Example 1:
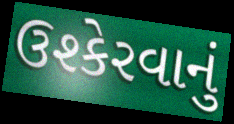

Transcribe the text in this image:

ઉશ્કેરવાનું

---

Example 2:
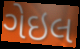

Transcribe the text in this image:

ગેઇલ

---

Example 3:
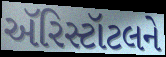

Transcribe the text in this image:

ઍરિસ્ટૉટલને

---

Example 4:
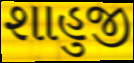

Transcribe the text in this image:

શાહુજી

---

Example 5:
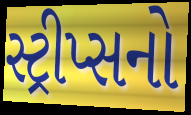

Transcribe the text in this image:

સ્ટ્રીપ્સનો